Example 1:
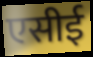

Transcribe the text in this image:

एसीई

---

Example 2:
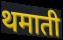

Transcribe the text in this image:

थमाती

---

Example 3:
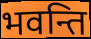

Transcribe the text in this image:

भवन्ति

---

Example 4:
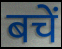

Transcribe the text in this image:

बचें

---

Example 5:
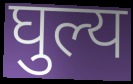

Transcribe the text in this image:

घुल्य